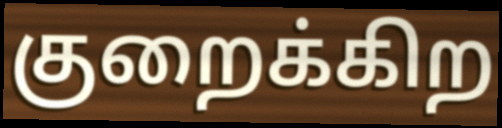
குறைக்கிற